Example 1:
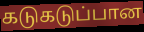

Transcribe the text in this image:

கடுகடுப்பான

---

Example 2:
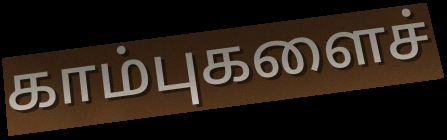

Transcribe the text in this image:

காம்புகளைச்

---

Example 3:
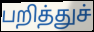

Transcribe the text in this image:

பறித்துச்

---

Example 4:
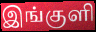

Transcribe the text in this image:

இங்குளி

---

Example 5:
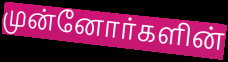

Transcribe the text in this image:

முன்னோர்களின்